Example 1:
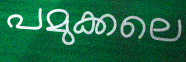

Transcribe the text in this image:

പമുക്കലെ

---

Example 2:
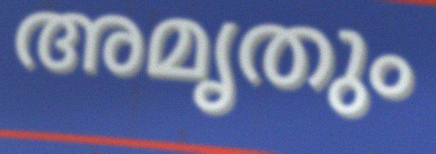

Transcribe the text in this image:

അമൃതും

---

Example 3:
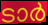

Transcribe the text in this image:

ടാർ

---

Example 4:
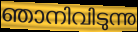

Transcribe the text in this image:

ഞാനിവിടുന്നു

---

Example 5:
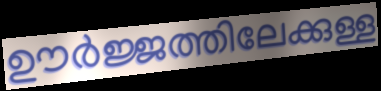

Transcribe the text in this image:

ഊർജ്ജത്തിലേക്കുള്ള